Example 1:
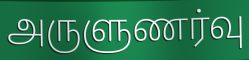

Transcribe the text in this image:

அருளுணர்வு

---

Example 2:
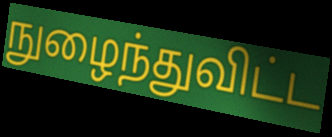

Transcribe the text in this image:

நுழைந்துவிட்ட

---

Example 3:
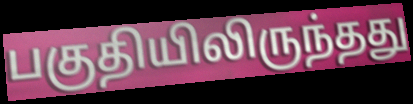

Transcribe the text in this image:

பகுதியிலிருந்தது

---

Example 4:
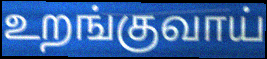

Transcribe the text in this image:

உறங்குவாய்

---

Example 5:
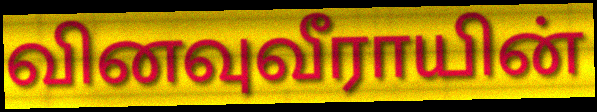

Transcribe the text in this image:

வினவுவீராயின்